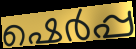
ഷെർപ്പ